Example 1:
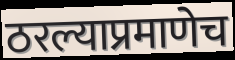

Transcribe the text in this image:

ठरल्याप्रमाणेच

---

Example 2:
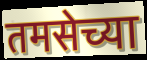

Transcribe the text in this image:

तमसेच्या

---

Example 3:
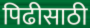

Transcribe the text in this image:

पिढीसाठी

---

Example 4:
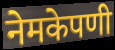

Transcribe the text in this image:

नेमकेपणी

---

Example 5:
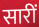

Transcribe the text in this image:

सारीं